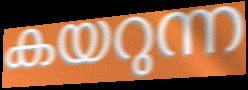
കയറുന്ന